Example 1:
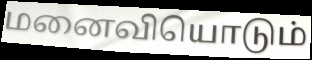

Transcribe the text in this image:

மனைவியொடும்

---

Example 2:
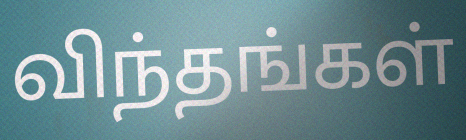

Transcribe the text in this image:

விந்தங்கள்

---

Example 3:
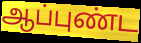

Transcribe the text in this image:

ஆப்புண்ட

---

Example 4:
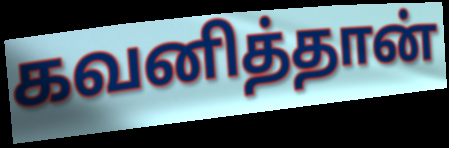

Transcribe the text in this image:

கவனித்தான்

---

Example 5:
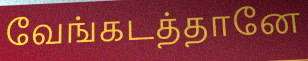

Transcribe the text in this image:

வேங்கடத்தானே